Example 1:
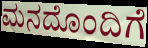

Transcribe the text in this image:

ಮನದೊಂದಿಗೆ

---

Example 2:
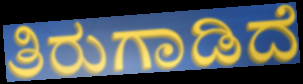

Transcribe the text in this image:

ತಿರುಗಾಡಿದೆ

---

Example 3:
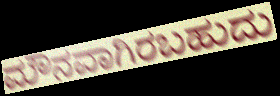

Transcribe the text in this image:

ಮೌನವಾಗಿರಬಹುದು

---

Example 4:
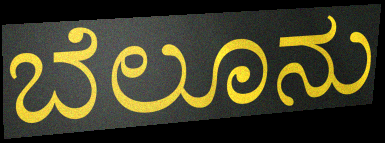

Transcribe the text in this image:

ಬೆಲೂನು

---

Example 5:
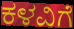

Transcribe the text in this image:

ಕಳವಿಗೆ